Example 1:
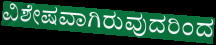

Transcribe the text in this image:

ವಿಶೇಷವಾಗಿರುವುದರಿಂದ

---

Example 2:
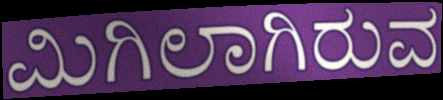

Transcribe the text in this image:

ಮಿಗಿಲಾಗಿರುವ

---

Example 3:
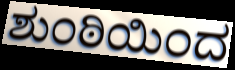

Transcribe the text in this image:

ಶುಂಠಿಯಿಂದ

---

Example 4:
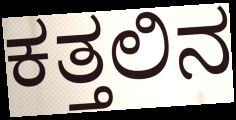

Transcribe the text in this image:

ಕತ್ತಲಿನ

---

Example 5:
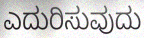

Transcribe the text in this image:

ಎದುರಿಸುವುದು